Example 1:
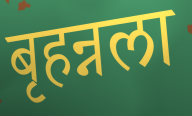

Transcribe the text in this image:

बृहन्नला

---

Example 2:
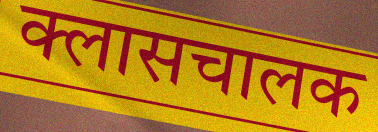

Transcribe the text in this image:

क्‍लासचालक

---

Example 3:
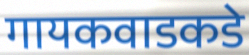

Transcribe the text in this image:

गायकवाडकडे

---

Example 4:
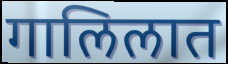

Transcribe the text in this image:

गालिलात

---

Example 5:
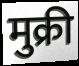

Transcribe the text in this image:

मुक्री